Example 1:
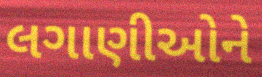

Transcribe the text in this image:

લગાણીઓને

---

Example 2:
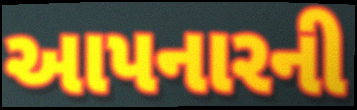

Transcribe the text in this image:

આપનારની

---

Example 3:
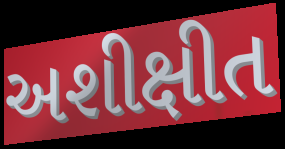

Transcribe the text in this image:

અશીક્ષીત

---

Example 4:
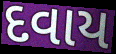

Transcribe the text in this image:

દવાય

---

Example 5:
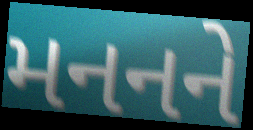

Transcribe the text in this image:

મનનને